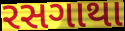
રસગાથા